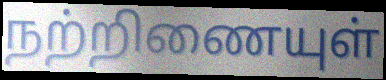
நற்றிணையுள்